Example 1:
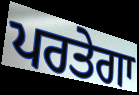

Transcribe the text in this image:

ਪਰਤੇਗਾ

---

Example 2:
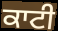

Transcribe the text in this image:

ਕਾਟੀ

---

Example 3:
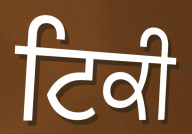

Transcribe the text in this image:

ਟਿਕੀ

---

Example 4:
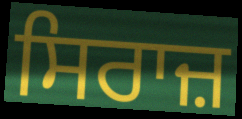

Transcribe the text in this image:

ਸਿਰਾਜ਼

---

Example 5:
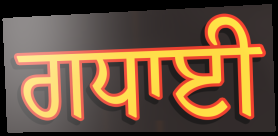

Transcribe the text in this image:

ਗਧਾਈ